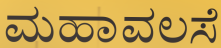
ಮಹಾವಲಸೆ